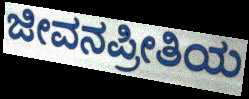
ಜೀವನಪ್ರೀತಿಯ